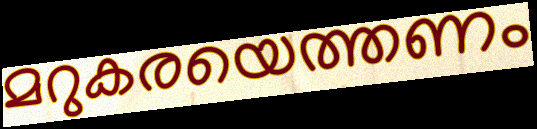
മറുകരയെത്തണം